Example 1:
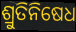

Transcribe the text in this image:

ଶ୍ରୁତିନିଷେଧ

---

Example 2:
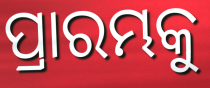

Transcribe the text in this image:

ପ୍ରାରମ୍ଭକୁ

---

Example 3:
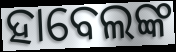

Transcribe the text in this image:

ହାବେଲଙ୍କ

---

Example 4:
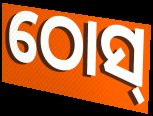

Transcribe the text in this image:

ଠୋସ୍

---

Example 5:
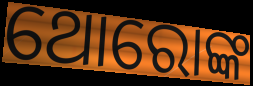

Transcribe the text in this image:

ଥୋରୋଙ୍କ